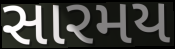
સારમય